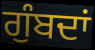
ਗੁੰਬਦਾਂ